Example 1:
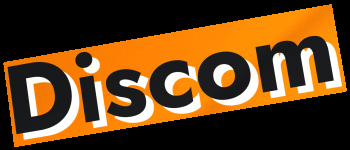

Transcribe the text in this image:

Discom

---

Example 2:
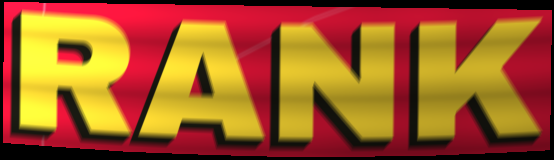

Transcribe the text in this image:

RANK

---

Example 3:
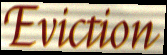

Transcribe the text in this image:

Eviction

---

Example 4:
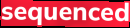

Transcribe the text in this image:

sequenced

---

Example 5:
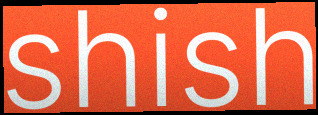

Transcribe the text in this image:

shish